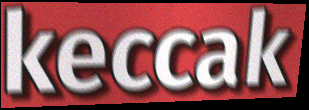
keccak